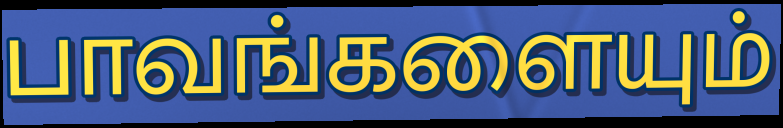
பாவங்களையும்